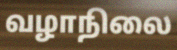
வழாநிலை